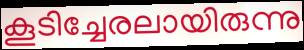
കൂടിച്ചേരലായിരുന്നു